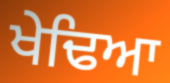
ਖੇਢਿਆ